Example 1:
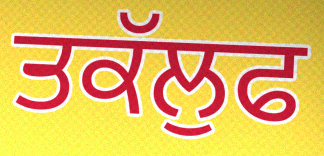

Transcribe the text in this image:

ਤਕੱਲੁਫ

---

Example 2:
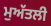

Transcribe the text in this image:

ਮੁਅੱਤਲੀ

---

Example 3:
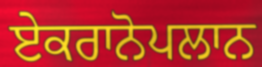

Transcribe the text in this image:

ਏਕਰਾਨੋਪਲਾਨ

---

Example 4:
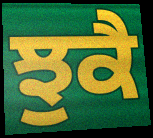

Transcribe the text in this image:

ਝੁਕੈ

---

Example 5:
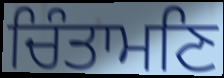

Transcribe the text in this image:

ਚਿੰਤਾਮਣਿ